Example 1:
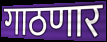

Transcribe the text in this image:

गाठणार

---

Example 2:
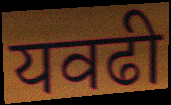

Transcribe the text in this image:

यवढी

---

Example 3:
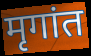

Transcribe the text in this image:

मृगांत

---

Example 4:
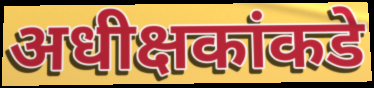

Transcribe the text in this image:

अधीक्षकांकडे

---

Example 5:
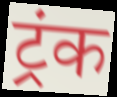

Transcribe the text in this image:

ट्रंक